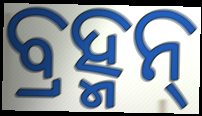
ବ୍ରହ୍ମନ୍